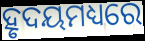
ହୃଦୟମଧ୍ୟରେ